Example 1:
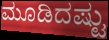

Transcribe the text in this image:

ಮೂಡಿದಷ್ಟು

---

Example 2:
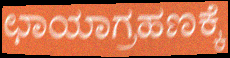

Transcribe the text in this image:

ಛಾಯಾಗ್ರಹಣಕ್ಕೆ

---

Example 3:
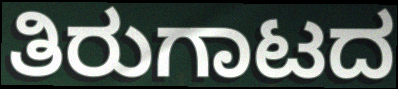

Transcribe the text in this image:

ತಿರುಗಾಟದ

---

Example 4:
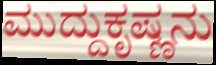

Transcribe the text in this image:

ಮುದ್ದುಕೃಷ್ಣನು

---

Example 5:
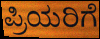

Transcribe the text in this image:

ಪ್ರಿಯರಿಗೆ